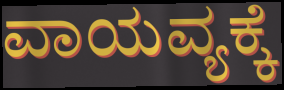
ವಾಯವ್ಯಕ್ಕೆ